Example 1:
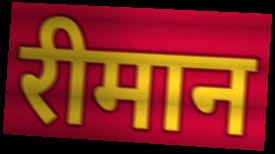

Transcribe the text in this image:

रीमान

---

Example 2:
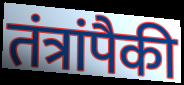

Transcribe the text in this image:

तंत्रांपैकी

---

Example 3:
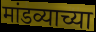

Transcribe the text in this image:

मांडव्याच्या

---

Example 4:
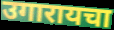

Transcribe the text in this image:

उगारायचा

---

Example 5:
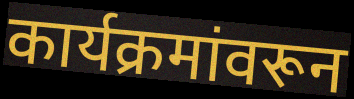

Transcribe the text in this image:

कार्यक्रमांवरून